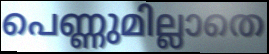
പെണ്ണുമില്ലാതെ